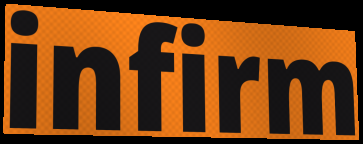
infirm